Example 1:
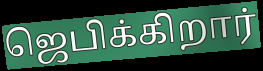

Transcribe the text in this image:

ஜெபிக்கிறார்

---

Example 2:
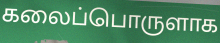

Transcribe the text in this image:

கலைப்பொருளாக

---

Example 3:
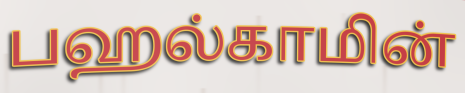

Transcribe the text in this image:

பஹல்காமின்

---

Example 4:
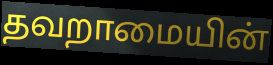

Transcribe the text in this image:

தவறாமையின்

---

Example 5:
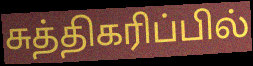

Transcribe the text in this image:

சுத்திகரிப்பில்